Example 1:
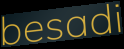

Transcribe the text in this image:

besadi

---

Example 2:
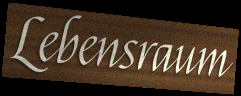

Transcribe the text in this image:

Lebensraum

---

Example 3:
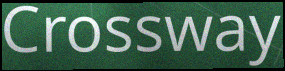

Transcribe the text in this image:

Crossway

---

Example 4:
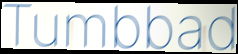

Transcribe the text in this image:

Tumbbad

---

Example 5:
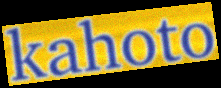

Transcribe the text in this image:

kahoto